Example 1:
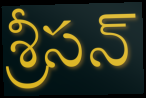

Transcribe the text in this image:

శ్రీసన్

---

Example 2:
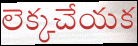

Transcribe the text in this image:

లెక్కచేయక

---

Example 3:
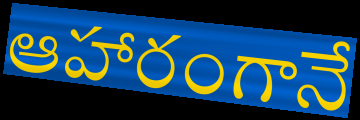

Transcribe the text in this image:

ఆహారంగానే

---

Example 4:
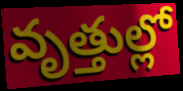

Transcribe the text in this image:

వృత్తుల్లో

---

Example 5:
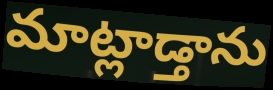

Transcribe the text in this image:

మాట్లాడ్తాను